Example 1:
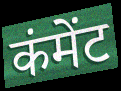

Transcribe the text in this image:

कंमेंट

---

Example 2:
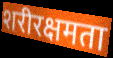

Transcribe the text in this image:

शरीरक्षमता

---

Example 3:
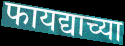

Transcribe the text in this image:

फायद्याच्या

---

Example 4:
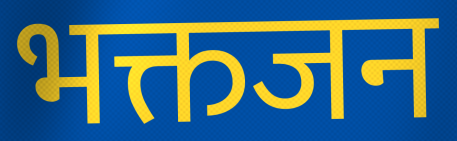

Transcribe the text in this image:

भक्तजन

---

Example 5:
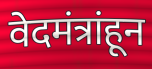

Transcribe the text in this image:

वेदमंत्रांहून